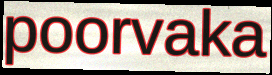
poorvaka